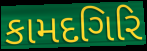
કામદગિરિ